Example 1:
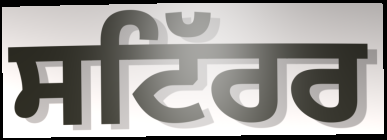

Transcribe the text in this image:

ਸਟਿੱਰਰ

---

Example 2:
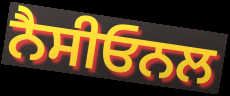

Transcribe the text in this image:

ਨੈਸੀਓਨਲ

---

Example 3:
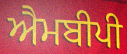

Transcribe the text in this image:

ਐਮਬੀਪੀ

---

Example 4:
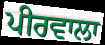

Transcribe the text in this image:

ਪੀਰਵਾਲਾ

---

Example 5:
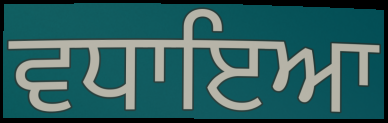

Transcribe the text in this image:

ਵਧਾਇਆ